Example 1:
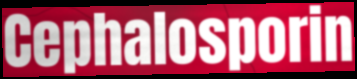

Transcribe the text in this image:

Cephalosporin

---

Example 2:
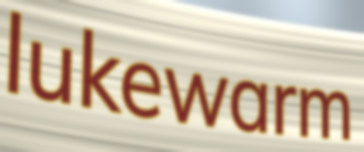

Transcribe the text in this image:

lukewarm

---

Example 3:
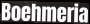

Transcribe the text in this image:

Boehmeria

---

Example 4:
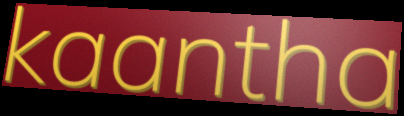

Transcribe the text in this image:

kaantha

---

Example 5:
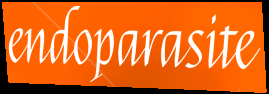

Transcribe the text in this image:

endoparasite